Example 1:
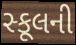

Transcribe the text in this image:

સ્કૂલની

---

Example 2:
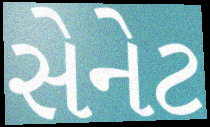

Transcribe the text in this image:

સેનેટ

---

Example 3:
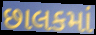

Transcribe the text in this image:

છાલકમાં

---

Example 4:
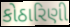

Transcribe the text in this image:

કોઠારિણી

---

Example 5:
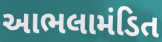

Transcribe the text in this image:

આભલામંડિત